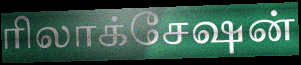
ரிலாக்சேஷன்